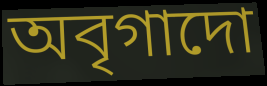
অবৃগাদো